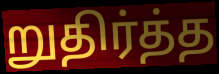
றுதிர்த்த